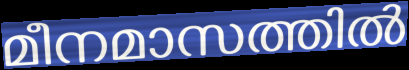
മീനമാസത്തിൽ